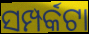
ସମ୍ପର୍କଟା